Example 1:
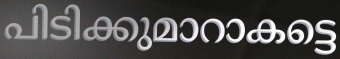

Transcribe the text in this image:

പിടിക്കുമാറാകട്ടെ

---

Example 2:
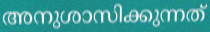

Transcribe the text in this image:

അനുശാസിക്കുന്നത്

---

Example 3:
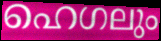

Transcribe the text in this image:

ഹെഗലും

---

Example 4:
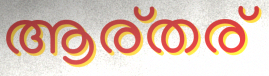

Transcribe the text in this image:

ആര്തര്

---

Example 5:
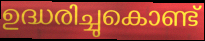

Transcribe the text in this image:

ഉദ്ധരിച്ചുകൊണ്ട്